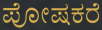
ಪೋಷಕರೆ